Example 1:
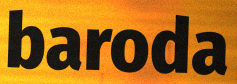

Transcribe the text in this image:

baroda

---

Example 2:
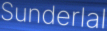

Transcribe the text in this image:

Sunderlal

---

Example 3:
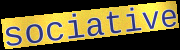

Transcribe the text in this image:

sociative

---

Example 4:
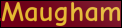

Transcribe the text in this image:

Maugham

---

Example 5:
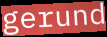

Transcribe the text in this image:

gerund